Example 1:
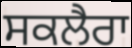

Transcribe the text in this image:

ਸਕਲੈਰਾ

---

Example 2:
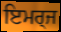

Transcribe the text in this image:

ਇਮਰ੍ਜ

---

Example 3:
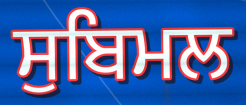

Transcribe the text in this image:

ਸੁਬਿਮਲ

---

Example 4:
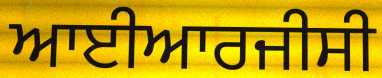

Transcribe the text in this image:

ਆਈਆਰਜੀਸੀ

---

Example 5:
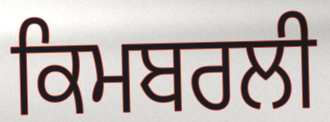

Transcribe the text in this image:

ਕਿਮਬਰਲੀ